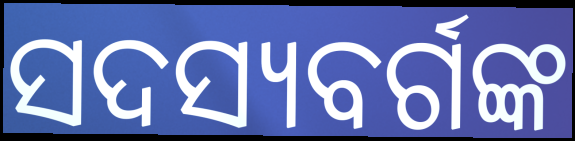
ସଦସ୍ୟବର୍ଗଙ୍କ